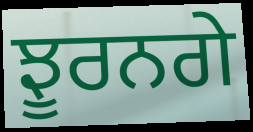
ਝੂਰਨਗੇ